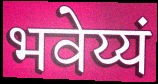
भवेय्यं